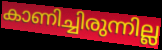
കാണിച്ചിരുന്നില്ല